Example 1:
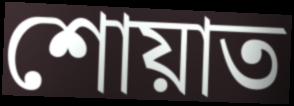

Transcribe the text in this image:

শোয়াত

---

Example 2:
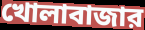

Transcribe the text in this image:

খোলাবাজার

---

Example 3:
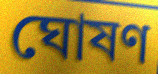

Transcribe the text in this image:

ঘোষণ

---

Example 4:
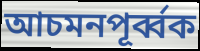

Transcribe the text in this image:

আচমনপূর্ব্বক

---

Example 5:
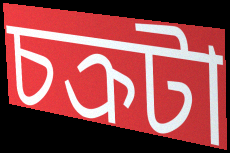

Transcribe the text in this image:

চক্রটা